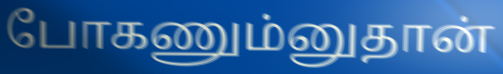
போகணும்னுதான்